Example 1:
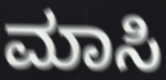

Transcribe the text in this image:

ಮಾಸಿ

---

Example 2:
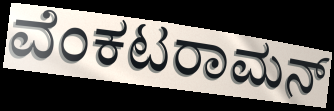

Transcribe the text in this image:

ವೆಂಕಟರಾಮನ್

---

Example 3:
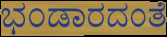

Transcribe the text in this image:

ಭಂಡಾರದಂತೆ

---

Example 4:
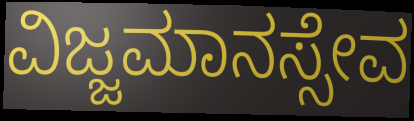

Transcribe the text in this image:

ವಿಜ್ಜಮಾನಸ್ಸೇವ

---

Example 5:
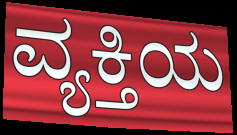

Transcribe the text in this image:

ವ್ಯಕ್ತಿಯ